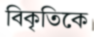
বিকৃতিকে